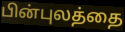
பின்புலத்தை